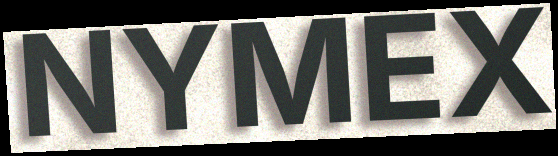
NYMEX